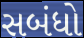
સબંધો